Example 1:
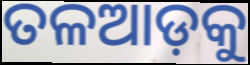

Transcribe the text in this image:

ତଳଆଡ଼କୁ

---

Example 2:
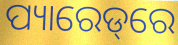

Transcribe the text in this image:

ପ୍ୟାରେଡ୍‌ରେ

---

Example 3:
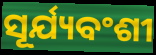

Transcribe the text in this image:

ସୂର୍ଯ୍ୟବଂଶୀ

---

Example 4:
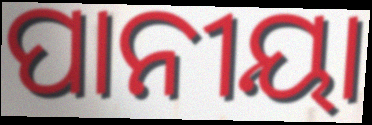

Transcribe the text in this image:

ପାନୀୟା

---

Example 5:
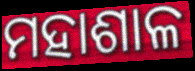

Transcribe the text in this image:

ମହାଶାଳ